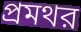
প্রমথর